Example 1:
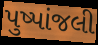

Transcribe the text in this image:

પુષ્પાંજલી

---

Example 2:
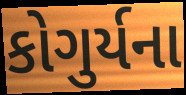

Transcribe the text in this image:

કોગુર્યના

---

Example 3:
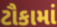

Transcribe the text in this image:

ટૌકામાં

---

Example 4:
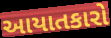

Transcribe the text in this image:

આયાતકારો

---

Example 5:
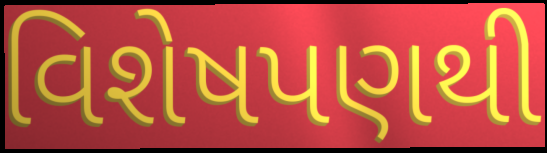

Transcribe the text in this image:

વિશેષપણથી